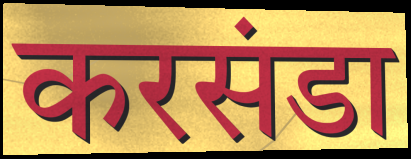
करसंडा